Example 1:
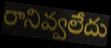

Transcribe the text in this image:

రానివ్వలేదు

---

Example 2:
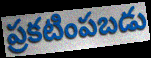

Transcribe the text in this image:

ప్రకటింపబడు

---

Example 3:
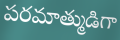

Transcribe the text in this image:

పరమాత్ముడిగా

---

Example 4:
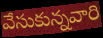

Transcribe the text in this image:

వేసుకున్నవారి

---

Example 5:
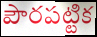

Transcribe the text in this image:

పౌరపట్టిక